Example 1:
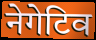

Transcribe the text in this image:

नेगेटिव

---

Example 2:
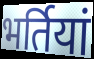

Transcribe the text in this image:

भर्तियां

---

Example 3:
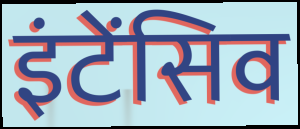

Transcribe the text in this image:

इंटेंसिव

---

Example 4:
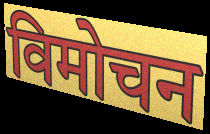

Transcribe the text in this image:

विमोचन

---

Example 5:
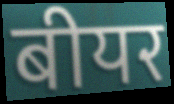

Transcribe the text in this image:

बीयर